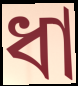
ধা